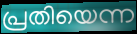
പ്രതിയെന്ന